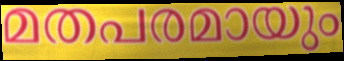
മതപരമായും